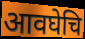
आवघेचि